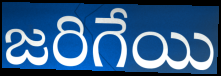
జరిగేయి